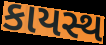
કાયસ્થ